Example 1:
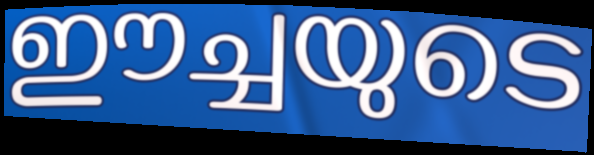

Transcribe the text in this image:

ഈച്ചയുടെ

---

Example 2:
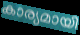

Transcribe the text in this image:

കാര്യമായി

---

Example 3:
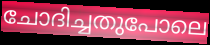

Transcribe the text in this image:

ചോദിച്ചതുപോലെ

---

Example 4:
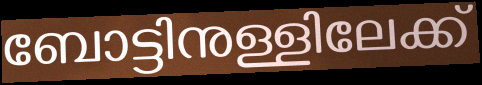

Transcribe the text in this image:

ബോട്ടിനുള്ളിലേക്ക്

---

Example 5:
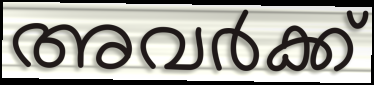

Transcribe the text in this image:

അവർക്ക്